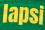
lapsi